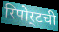
रिपोर्टची